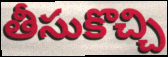
తీసుకొచ్చి